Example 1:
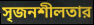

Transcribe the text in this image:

সৃজনশীলতার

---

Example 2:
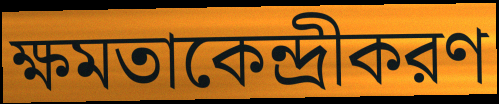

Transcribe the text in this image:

ক্ষমতাকেন্দ্রীকরণ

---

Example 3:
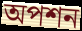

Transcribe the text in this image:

অপশন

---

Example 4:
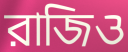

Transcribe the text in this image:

রাজিও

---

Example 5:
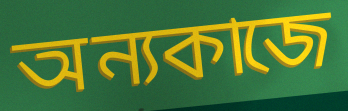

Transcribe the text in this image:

অন্যকাজে